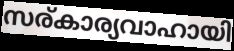
സര്കാര്യവാഹായി